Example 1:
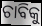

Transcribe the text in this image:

ଚାବିକୁ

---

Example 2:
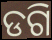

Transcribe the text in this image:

ଡଗି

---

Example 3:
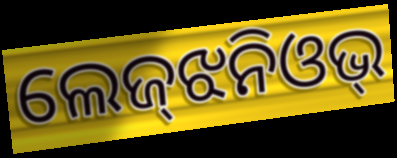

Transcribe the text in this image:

ଲେଜ୍‌ଝନିଓଭ୍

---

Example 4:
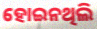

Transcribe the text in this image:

ହୋଇନଥିଲି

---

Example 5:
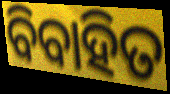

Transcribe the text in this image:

ବିବାହିତ